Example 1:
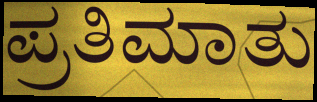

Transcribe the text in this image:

ಪ್ರತಿಮಾತು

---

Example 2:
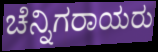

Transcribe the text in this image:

ಚೆನ್ನಿಗರಾಯರು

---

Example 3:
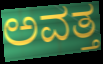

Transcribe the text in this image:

ಅವತ್ತ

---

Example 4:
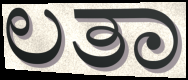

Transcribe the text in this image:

ಲತಾ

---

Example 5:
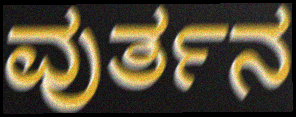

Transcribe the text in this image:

ವುರ್ತನ